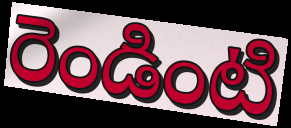
రెండింటి